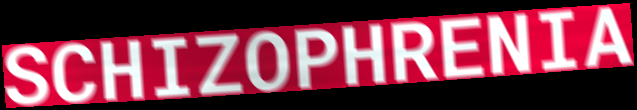
SCHIZOPHRENIA